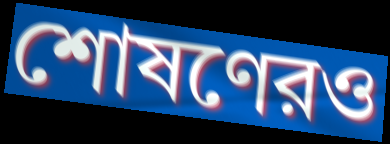
শোষণেরও